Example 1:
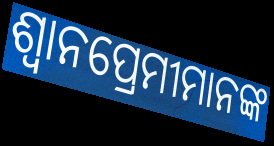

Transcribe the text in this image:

ଶ୍ଵାନପ୍ରେମୀମାନଙ୍କ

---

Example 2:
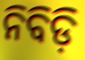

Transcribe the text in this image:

ନିବିଡ଼ି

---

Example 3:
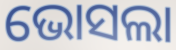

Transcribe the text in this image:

ଭୋସଲା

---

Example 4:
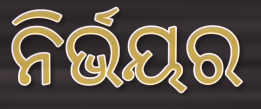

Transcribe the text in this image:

ନିର୍ଭୟର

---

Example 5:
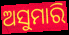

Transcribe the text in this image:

ଅସୁମାରି